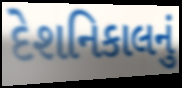
દેશનિકાલનું